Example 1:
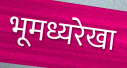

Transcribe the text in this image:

भूमध्यरेखा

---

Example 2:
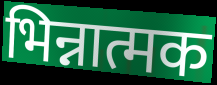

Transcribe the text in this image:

भिन्नात्मक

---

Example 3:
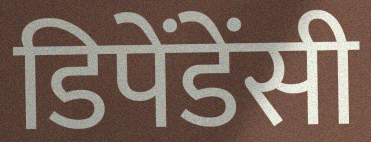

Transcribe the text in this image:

डिपेंडेंसी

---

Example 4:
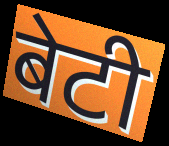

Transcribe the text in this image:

बेटी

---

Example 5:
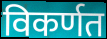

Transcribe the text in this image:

विकर्णत